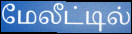
மேலீட்டில்